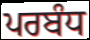
ਪਰਬੰਧ